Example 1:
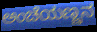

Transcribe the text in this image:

ಅಂಚೆಯಣ್ಣನ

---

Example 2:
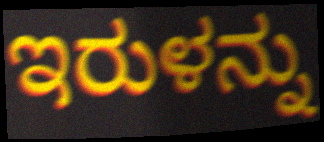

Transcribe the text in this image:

ಇರುಳನ್ನು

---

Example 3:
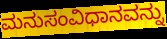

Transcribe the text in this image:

ಮನುಸಂವಿಧಾನವನ್ನು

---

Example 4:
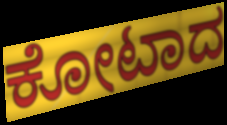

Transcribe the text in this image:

ಕೋಟಾದ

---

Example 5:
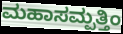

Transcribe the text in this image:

ಮಹಾಸಮ್ಪತ್ತಿಂ